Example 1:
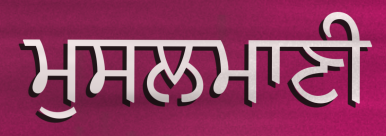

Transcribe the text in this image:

ਮੁਸਲਮਾਣੀ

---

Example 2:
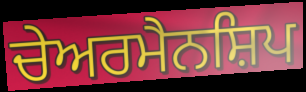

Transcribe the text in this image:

ਚੇਅਰਮੈਨਸ਼ਿਪ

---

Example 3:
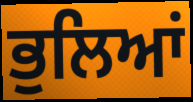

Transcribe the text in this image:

ਭੁਲਿਆਂ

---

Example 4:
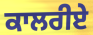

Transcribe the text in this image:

ਕਾਲਰੀਏ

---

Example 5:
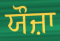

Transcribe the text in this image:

ਯੌਜ਼ਾ